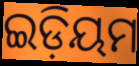
ଇଡ଼ିୟମ